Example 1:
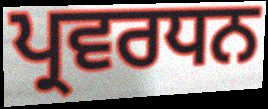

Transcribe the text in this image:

ਪ੍ਰਵਰਧਨ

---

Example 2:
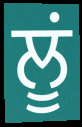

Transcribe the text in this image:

ਲੂਂ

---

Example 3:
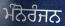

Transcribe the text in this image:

ਮੰਨੋਰੰਜਨ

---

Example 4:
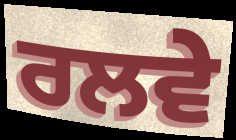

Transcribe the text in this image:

ਰਲਵੇ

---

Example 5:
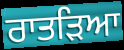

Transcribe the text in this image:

ਰਾਤੜਿਆ